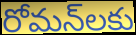
రోమన్‌లకు